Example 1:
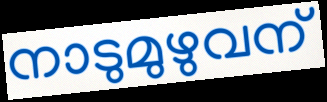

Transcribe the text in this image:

നാടുമുഴുവന്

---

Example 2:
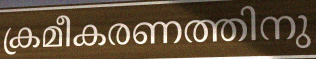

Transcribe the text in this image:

ക്രമീകരണത്തിനു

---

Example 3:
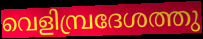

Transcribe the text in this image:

വെളിമ്പ്രദേശത്തു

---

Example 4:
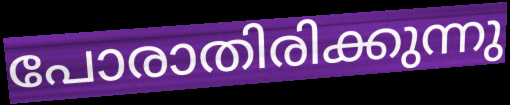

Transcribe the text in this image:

പോരാതിരിക്കുന്നു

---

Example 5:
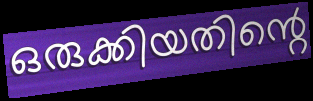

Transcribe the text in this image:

ഒരുക്കിയതിന്റെ